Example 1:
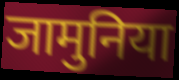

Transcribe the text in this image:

जामुनिया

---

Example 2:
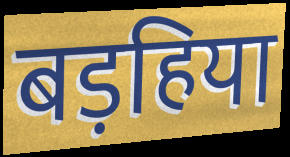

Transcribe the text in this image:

बड़हिया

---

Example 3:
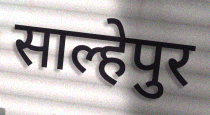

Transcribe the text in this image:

साल्हेपुर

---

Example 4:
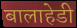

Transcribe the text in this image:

बालाहेडी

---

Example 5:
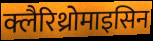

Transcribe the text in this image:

क्लैरिथ्रोमाइसिन